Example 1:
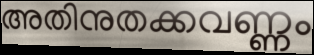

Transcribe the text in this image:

അതിനുതക്കവണ്ണം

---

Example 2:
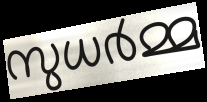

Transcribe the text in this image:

സുധർമ്മ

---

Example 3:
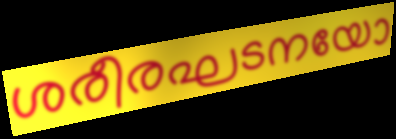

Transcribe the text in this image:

ശരീരഘടനയോ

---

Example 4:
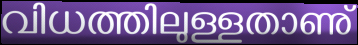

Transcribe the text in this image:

വിധത്തിലുള്ളതാണു്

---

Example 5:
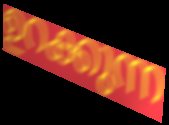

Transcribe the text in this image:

ഉറക്കുന്ന